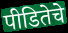
पीडितेचे